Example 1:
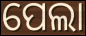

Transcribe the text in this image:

ପେଲା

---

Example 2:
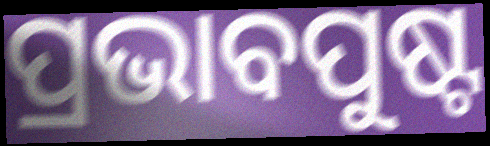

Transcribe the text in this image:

ପ୍ରଭାବପୁଷ୍ଟ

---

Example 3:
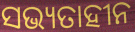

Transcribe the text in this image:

ସଭ୍ୟତାହୀନ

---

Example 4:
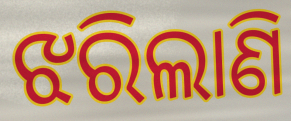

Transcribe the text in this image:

ଝରିଲାଣି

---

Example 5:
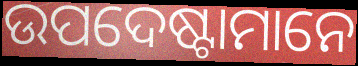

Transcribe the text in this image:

ଉପଦେଷ୍ଟାମାନେ